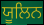
ਯੂਲਿਨ